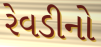
રેવડીનો